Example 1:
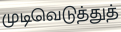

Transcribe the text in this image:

முடிவெடுத்துத்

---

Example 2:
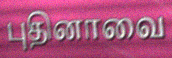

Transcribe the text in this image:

புதினாவை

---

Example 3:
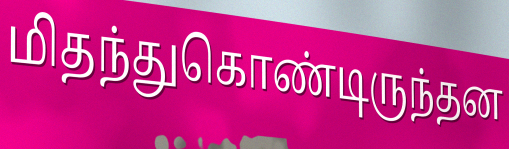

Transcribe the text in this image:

மிதந்துகொண்டிருந்தன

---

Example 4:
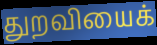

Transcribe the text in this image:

துறவியைக்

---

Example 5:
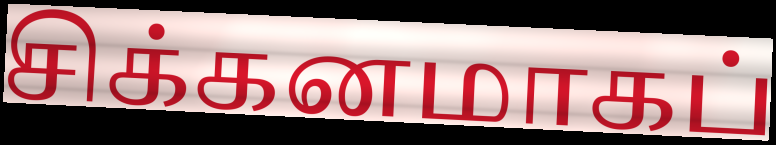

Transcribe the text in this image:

சிக்கனமாகப்